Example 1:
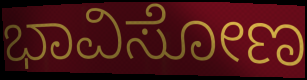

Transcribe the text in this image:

ಭಾವಿಸೋಣ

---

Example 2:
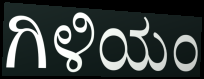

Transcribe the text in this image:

ಗಿಳಿಯಂ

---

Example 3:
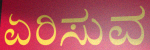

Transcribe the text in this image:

ಏರಿಸುವ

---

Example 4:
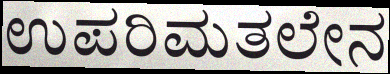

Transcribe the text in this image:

ಉಪರಿಮತಲೇನ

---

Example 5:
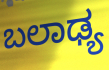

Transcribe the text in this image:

ಬಲಾಢ್ಯ